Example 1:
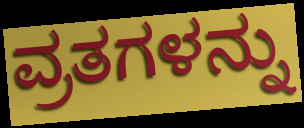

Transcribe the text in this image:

ವ್ರತಗಳನ್ನು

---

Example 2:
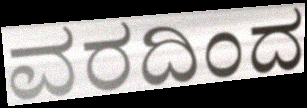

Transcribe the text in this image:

ವರದಿಂದ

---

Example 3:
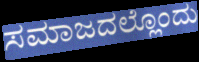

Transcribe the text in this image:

ಸಮಾಜದಲ್ಲೊಂದು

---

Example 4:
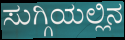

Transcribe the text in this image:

ಸುಗ್ಗಿಯಲ್ಲಿನ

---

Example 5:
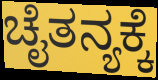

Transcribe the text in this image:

ಚೈತನ್ಯಕ್ಕೆ